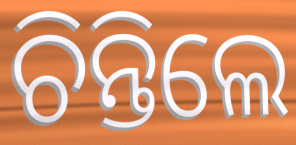
ଚିନ୍ତିଲେ